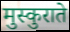
मुस्कुराते